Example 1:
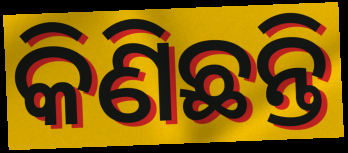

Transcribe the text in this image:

କିଣିଛନ୍ତି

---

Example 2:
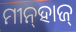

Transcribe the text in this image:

ମୀନ୍‌ହାଜ୍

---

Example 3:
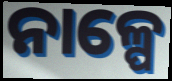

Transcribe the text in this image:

ନାଳ୍ପେ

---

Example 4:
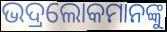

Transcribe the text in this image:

ଭଦ୍ରଲୋକମାନଙ୍କୁ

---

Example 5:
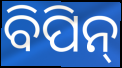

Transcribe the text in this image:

ବିପିନ୍